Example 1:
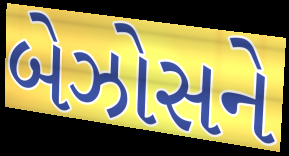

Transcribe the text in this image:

બેઝોસને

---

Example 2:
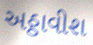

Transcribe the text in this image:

અઠ્ઠાવીશ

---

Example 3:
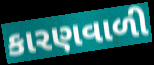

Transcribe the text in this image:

કારણવાળી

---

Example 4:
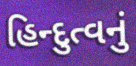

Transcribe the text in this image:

હિન્દુત્વનું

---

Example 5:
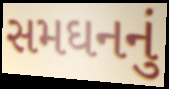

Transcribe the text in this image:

સમઘનનું